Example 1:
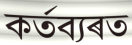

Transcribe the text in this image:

কৰ্তব্যৰত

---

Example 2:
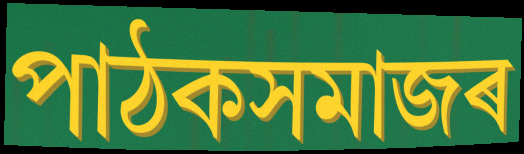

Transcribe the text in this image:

পাঠকসমাজৰ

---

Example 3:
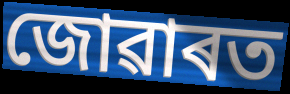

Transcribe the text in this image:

জোৱাৰত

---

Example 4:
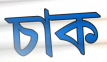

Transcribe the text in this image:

চাক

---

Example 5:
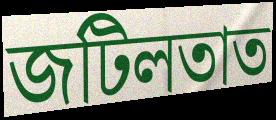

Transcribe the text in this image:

জটিলতাত